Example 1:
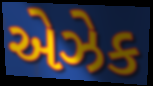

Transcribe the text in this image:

એઝેક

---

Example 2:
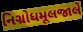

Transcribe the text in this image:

નિગ્રોધમૂલજાલે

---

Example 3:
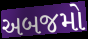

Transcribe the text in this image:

અબજમો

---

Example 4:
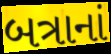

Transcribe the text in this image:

બત્રાનાં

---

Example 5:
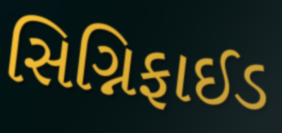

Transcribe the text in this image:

સિગ્નિફાઈડ